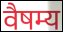
वैषम्‍य